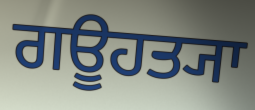
ਗਊਹਤ੍ਯਾ